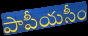
పాపీయసీం